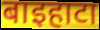
बाइहाटा